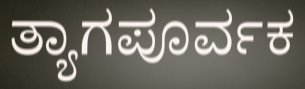
ತ್ಯಾಗಪೂರ್ವಕ